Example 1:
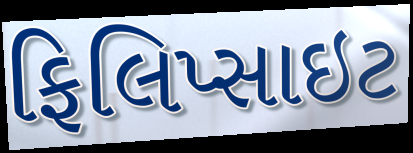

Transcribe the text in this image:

ફિલિપ્સાઇટ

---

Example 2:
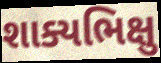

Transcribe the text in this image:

શાક્યભિક્ષુ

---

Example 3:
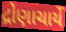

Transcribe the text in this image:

દ્રોણાચાર્યે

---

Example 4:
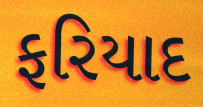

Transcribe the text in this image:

ફરિયાદ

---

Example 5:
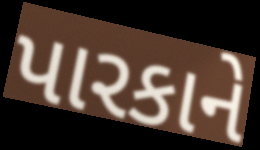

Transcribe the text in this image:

પારકાને